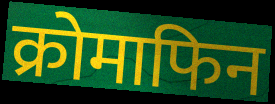
क्रोमाफिन